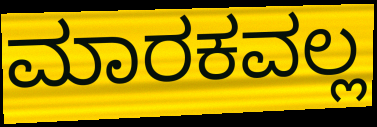
ಮಾರಕವಲ್ಲ